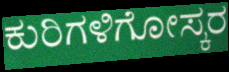
ಕುರಿಗಳಿಗೋಸ್ಕರ